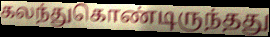
கலந்துகொண்டிருந்தது